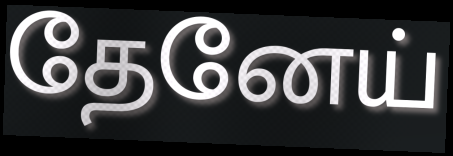
தேனேய்